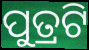
ପୁତ୍ରଟି